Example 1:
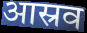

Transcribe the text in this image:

आस्रव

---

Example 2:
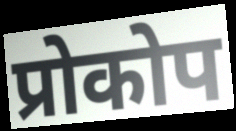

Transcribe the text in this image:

प्रोकोप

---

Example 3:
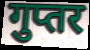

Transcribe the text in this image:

गुप्तर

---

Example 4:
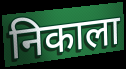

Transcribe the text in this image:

निकाला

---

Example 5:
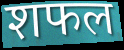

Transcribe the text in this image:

शफल